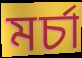
মৰ্চা